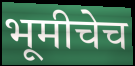
भूमीचेच